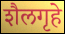
शैलगृहे